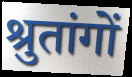
श्रुतांगों